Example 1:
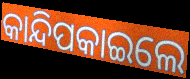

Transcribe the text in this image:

କାନ୍ଦିପକାଇଲେ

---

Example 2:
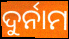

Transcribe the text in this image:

ଦୁର୍ନାମ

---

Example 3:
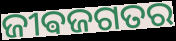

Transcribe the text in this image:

ଜୀଵଜଗତର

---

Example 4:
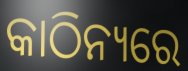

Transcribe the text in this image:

କାଠିନ୍ୟରେ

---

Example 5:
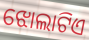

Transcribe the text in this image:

ଝୋଲାଟିଏ